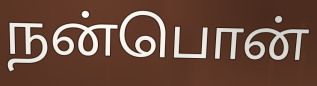
நன்பொன்